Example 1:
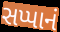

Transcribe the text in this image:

સપ્પાનં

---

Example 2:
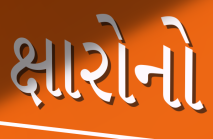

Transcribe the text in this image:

ક્ષારોનો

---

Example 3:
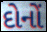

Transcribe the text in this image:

દોનોં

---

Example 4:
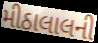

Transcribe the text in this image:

મીઠાલાલની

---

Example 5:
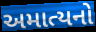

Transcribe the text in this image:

અમાત્યનો